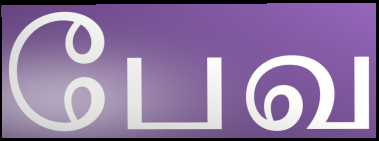
பேவ